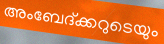
അംബേദ്ക്കറുടെയും